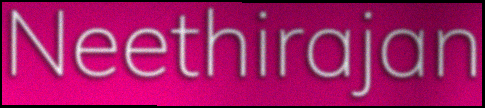
Neethirajan